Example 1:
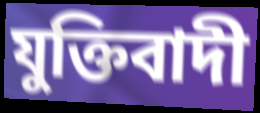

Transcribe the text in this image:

যুক্তিবাদী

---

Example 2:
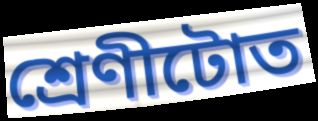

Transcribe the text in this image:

শ্ৰেণীটোত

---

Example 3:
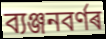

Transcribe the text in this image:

ব্যঞ্জনবৰ্ণৰ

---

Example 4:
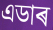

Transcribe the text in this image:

এডাৰ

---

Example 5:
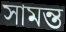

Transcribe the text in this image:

সামন্ত